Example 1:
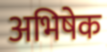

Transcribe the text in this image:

अभिषेक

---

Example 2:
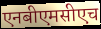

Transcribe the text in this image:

एनबीएमसीएच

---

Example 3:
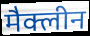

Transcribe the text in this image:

मैक्लीन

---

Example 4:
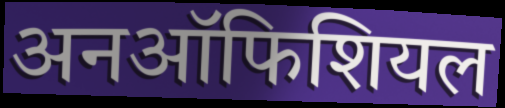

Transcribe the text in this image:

अनऑफिशियल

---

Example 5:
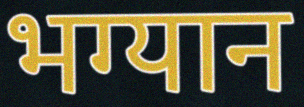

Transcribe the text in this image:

भग्यान